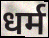
धर्म